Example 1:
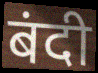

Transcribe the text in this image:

बंदी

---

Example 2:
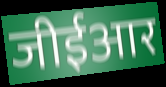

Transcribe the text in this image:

जीईआर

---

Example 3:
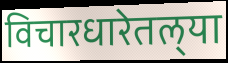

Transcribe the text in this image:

विचारधारेतल्या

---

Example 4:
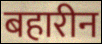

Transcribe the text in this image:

बहारीन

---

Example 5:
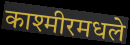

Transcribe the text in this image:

काश्‍मीरमधले